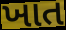
ખાત